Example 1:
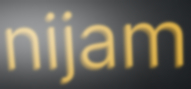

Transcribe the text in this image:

nijam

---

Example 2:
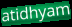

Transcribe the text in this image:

atidhyam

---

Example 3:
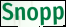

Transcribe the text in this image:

Snopp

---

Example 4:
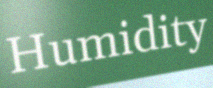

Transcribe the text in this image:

Humidity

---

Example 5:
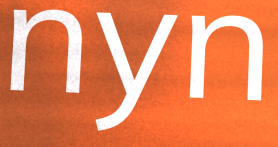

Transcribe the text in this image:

nyn